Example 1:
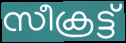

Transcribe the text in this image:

സീക്രട്ട്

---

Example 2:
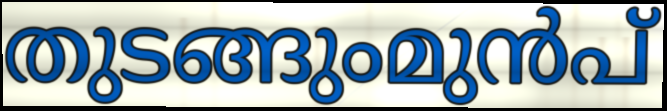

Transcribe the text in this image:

തുടങ്ങുംമുൻപ്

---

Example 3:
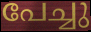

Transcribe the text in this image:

പേച്ചു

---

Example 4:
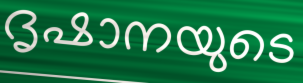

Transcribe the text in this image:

ദൃഷാനയുടെ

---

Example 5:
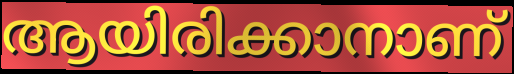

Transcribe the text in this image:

ആയിരിക്കാനാണ്